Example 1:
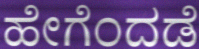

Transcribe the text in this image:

ಹೇಗೆಂದಡೆ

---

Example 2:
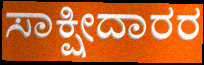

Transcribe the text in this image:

ಸಾಕ್ಷೀದಾರರ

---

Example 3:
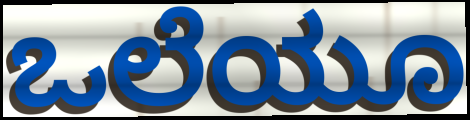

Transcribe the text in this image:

ಒಲೆಯೂ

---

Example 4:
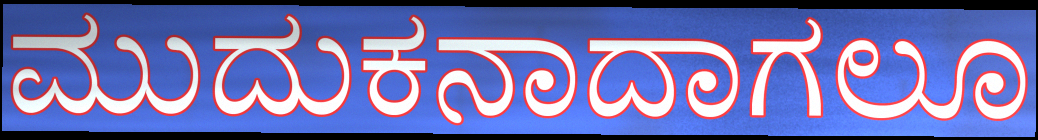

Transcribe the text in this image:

ಮುದುಕನಾದಾಗಲೂ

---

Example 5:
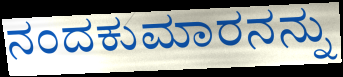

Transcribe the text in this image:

ನಂದಕುಮಾರನನ್ನು